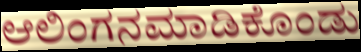
ಆಲಿಂಗನಮಾಡಿಕೊಂಡು